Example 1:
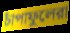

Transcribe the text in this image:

চাঁপাফুলেরা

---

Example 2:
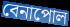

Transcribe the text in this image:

বেনাপোল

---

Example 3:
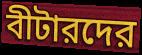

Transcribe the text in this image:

বীটারদের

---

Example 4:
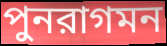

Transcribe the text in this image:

পুনরাগমন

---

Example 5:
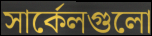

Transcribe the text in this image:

সার্কেলগুলো